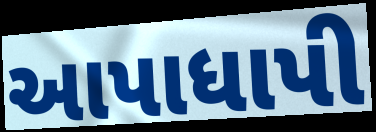
આપાધાપી